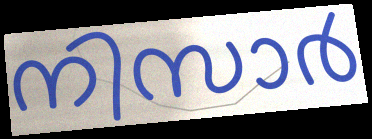
നിസാർ